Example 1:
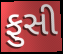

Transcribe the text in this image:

ફુસી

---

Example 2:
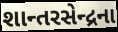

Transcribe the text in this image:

શાન્તરસેન્દ્રના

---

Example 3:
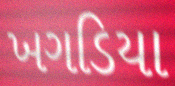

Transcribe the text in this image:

ખગડિયા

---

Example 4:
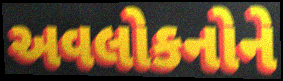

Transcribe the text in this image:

અવલોકનોને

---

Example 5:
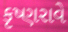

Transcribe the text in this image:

કૃષ્ણરાવે